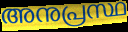
അനുപ്രസ്ഥ